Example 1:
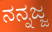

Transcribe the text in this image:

ನನ್ನಜ್ಜ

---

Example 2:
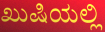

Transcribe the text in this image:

ಖುಷಿಯಲ್ಲಿ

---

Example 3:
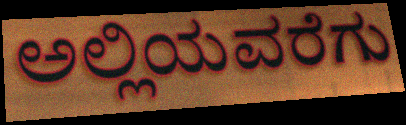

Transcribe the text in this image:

ಅಲ್ಲಿಯವರೆಗು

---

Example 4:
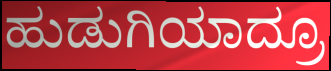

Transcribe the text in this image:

ಹುಡುಗಿಯಾದ್ರೂ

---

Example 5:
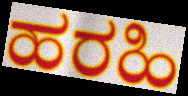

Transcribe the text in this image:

ಹರಹಿ